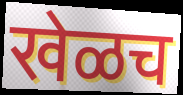
खेळच